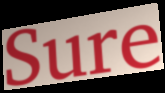
Sure